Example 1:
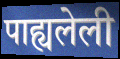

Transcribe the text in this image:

पाह्यलेली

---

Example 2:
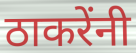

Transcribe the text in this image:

ठाकरेंनी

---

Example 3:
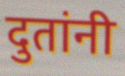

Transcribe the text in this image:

दुतांनी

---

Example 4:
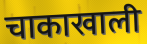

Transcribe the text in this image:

चाकाखाली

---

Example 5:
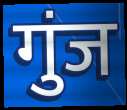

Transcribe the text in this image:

गुंज